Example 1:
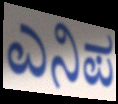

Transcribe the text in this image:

ಎನಿಪ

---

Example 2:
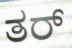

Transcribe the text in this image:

ತರ್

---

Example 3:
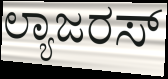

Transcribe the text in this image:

ಲ್ಯಾಜರಸ್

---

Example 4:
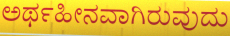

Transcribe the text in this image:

ಅರ್ಥಹೀನವಾಗಿರುವುದು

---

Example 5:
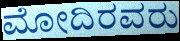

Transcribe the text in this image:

ಮೋದಿರವರು